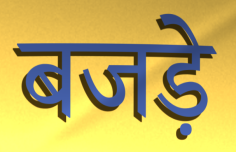
बजड़े